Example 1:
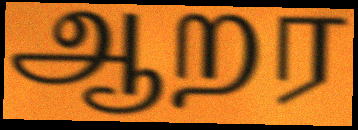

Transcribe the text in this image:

ஆறர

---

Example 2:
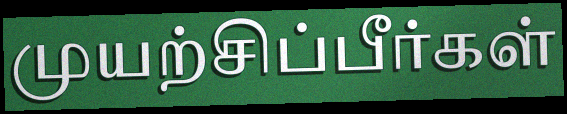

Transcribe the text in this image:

முயற்சிப்பீர்கள்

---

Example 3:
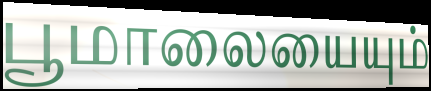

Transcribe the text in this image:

பூமாலையையும்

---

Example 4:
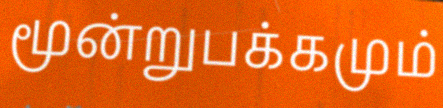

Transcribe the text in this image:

மூன்றுபக்கமும்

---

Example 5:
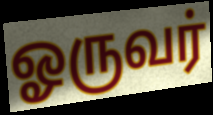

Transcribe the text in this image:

ஓருவர்